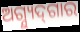
ଅଗ୍ନ୍ୟୁଦ୍‌ଗାର